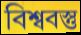
বিশ্ববস্তু